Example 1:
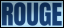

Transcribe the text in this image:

ROUGE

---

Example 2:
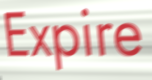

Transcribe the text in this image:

Expire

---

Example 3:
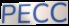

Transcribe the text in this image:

PECC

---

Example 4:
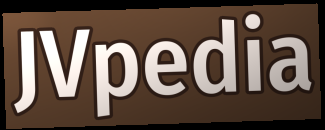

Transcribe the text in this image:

JVpedia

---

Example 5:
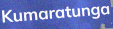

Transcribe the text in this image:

Kumaratunga